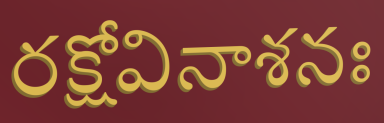
రక్షోవినాశనః